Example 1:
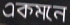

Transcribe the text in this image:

একমনে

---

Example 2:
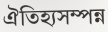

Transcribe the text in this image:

ঐতিহ্যসম্পন্ন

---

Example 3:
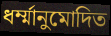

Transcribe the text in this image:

ধর্ম্মানুমোদিত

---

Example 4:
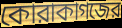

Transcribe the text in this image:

কোরাকাগজের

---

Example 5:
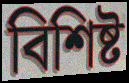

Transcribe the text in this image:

বিশিষ্ট